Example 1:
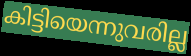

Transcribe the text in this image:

കിട്ടിയെന്നുവരില്ല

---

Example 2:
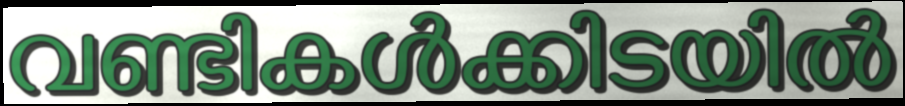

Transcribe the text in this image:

വണ്ടികൾക്കിടയിൽ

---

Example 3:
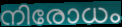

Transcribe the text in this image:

നിരോധം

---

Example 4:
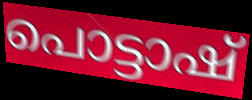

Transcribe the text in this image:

പൊട്ടാഷ്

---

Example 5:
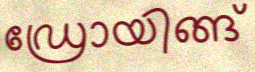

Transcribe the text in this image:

ഡ്രോയിങ്ങ്